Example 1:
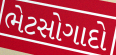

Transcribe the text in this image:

ભેટસોગાદો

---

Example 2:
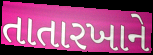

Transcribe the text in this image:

તાતારખાને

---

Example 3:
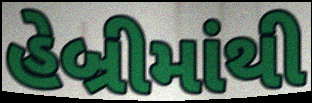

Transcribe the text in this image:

હેબ્રીમાંથી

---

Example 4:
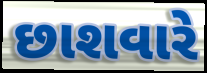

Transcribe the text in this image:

છાશવારે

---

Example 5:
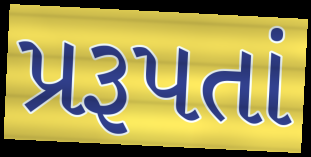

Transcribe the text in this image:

પ્રરૂપતાં